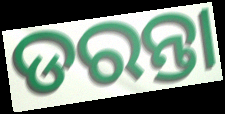
ଡରନ୍ତା